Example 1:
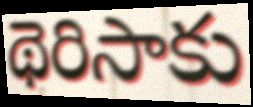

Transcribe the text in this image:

థెరిసాకు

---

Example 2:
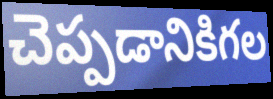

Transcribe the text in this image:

చెప్పడానికిగల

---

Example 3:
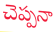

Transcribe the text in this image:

చెప్పనా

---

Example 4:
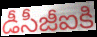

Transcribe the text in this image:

డీసీజీఐకి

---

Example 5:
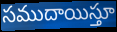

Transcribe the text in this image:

సముదాయిస్తూ